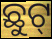
ଛୁଟ୍